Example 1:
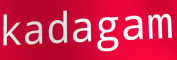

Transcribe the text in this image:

kadagam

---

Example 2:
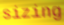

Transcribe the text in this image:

sizing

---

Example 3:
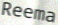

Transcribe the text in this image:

Reema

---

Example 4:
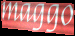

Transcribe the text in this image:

maggo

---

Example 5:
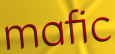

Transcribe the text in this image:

mafic